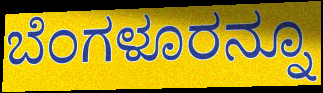
ಬೆಂಗಳೂರನ್ನೂ